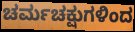
ಚರ್ಮಚಕ್ಷುಗಳಿಂದ